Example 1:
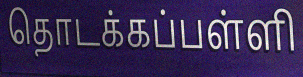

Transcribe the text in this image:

தொடக்கப்பள்ளி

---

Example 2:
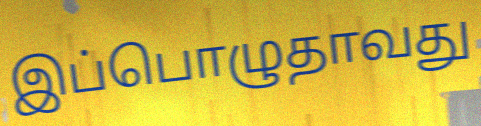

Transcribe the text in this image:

இப்பொழுதாவது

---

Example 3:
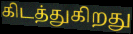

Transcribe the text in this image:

கிடத்துகிறது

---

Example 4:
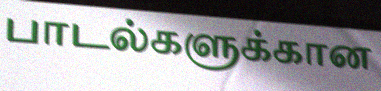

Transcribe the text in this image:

பாடல்களுக்கான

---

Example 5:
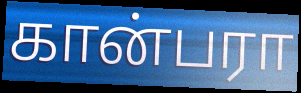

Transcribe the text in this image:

கான்பரா